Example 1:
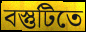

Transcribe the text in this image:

বস্তুটিতে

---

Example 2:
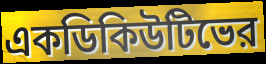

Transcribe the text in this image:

একডিকিউটিভের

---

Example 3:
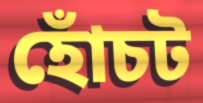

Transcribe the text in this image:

হোঁচট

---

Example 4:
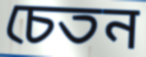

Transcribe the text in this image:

চেতন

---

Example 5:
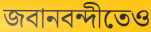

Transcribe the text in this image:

জবানবন্দীতেও